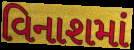
વિનાશમાં